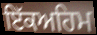
ਇੱਕਅਹਿਮ